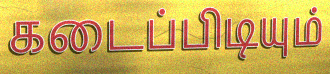
கடைப்பிடியும்